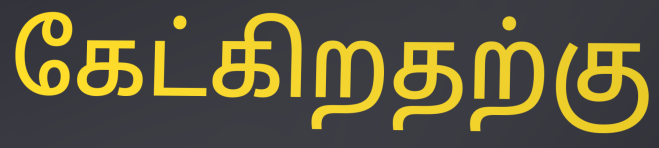
கேட்கிறதற்கு